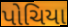
પોચિયા